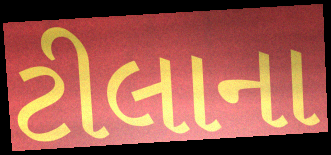
ટીલાના